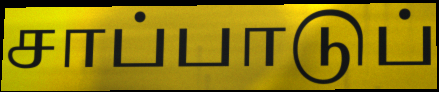
சாப்பாடுப்